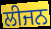
ਲੀਜਨ